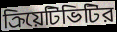
ক্রিয়েটিভিটির